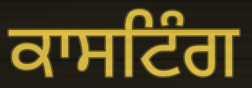
ਕਾਸਟਿੰਗ